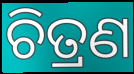
ଚିତ୍ରଣ